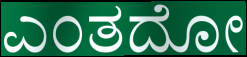
ಎಂತದೋ